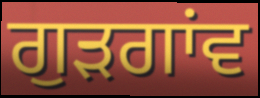
ਗੁੜਗਾਂਵ